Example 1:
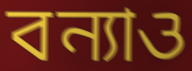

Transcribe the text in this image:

বন্যাও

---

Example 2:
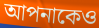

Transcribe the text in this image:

আপনাকেও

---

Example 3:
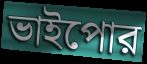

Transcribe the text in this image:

ভাইপোর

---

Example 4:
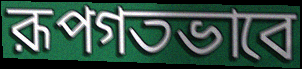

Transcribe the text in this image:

রূপগতভাবে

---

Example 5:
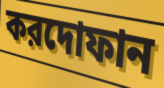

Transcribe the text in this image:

করদোফান